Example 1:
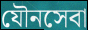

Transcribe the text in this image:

যৌনসেবা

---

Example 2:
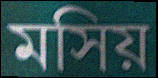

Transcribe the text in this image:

মসিয়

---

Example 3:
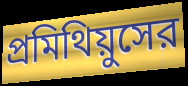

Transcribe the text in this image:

প্রমিথিয়ুসের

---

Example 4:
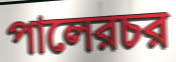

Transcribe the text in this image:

পালেরচর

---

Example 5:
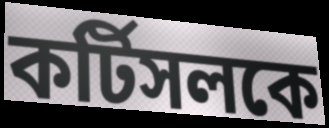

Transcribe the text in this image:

কর্টিসলকে